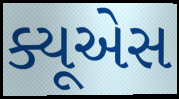
ક્યૂએસ